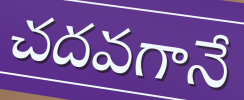
చదవగానే